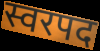
स्वरपद